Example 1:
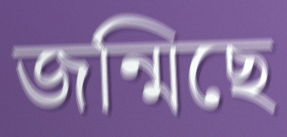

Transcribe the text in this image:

জন্মিছে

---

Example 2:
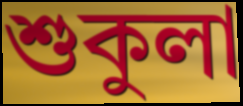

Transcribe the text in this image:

শুকুলা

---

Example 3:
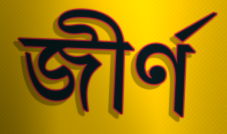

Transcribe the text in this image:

জীৰ্ণ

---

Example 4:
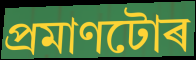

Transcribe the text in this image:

প্ৰমাণটোৰ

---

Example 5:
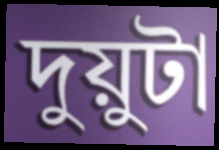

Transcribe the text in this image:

দুয়ুটা